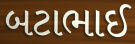
બટાભાઈ